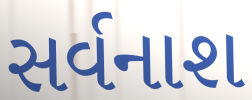
સર્વનાશ